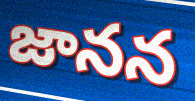
జానన